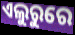
ଏଲୁରୁରେ